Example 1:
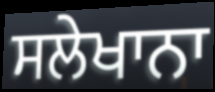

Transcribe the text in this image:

ਸਲੇਖਾਨਾ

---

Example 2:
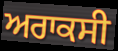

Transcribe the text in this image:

ਅਰਾਕਸੀ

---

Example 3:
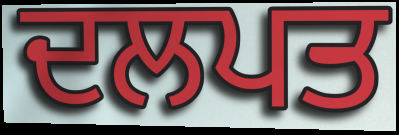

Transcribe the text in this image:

ਦਲਪਤ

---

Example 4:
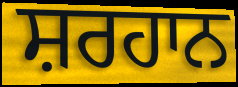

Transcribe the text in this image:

ਸ਼ਰਹਾਨ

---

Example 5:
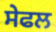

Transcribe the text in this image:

ਸੇਫਲ